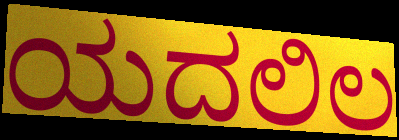
ಯದಲಿಲ